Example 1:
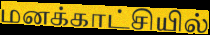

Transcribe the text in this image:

மனக்காட்சியில்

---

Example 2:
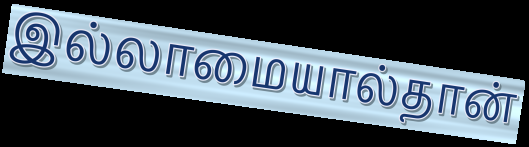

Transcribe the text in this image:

இல்லாமையால்தான்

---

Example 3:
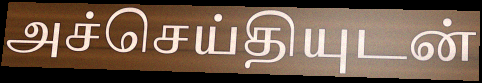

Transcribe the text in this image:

அச்செய்தியுடன்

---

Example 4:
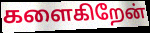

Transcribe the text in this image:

களைகிறேன்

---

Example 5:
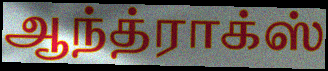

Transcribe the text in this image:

ஆந்த்ராக்ஸ்